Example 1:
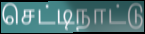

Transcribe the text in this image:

செட்டிநாட்டு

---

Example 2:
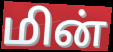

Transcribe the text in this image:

மின்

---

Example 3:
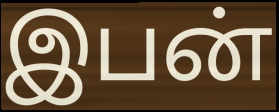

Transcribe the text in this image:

இபன்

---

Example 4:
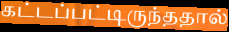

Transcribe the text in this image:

கட்டப்பட்டிருந்ததால்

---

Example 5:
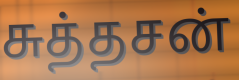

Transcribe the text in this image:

சுத்தசன்